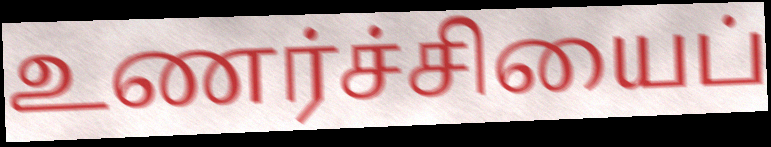
உணர்ச்சியைப்